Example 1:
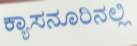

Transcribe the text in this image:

ಕ್ಯಾಸನೂರಿನಲ್ಲಿ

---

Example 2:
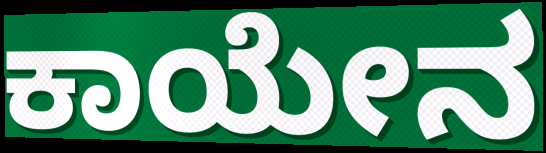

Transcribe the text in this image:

ಕಾಯೇನ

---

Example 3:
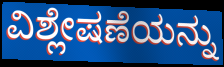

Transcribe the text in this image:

ವಿಶ್ಲೇಷಣೆಯನ್ನು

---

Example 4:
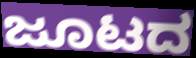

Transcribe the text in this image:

ಜೂಟದ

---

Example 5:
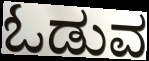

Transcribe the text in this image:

ಓಡುವ